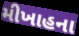
મીખાહના